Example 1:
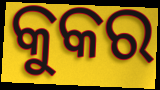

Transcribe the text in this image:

କୁକର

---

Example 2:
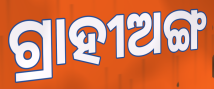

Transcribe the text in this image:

ଗ୍ରାହୀଅଙ୍ଗ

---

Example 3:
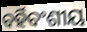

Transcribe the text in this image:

ବର୍ହିବଂଶୀୟ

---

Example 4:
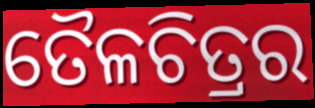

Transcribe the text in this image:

ତୈଳଚିତ୍ରର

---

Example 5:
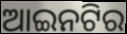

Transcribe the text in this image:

ଆଇନଟିର